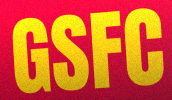
GSFC